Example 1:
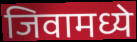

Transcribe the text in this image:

जिवामध्ये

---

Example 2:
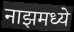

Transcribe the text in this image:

नाझमध्ये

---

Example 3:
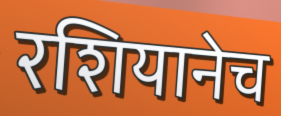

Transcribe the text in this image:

रशियानेच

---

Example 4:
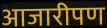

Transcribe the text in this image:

आजारीपण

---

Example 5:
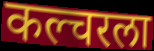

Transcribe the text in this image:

कल्चरला